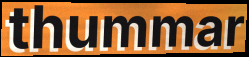
thummar